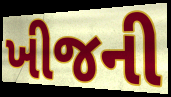
ખીજની